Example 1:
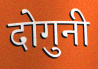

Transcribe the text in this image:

दोगुनी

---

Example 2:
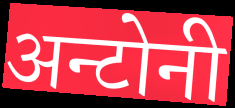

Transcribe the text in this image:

अन्टोनी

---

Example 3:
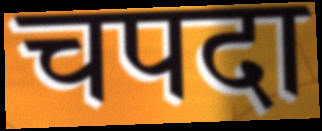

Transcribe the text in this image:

चपदा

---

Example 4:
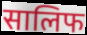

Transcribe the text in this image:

सालिफ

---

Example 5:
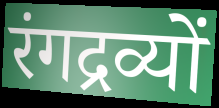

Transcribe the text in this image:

रंगद्रव्यों